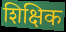
शिक्षिक